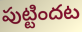
పుట్టిందట